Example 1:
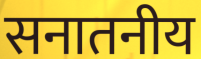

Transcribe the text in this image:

सनातनीय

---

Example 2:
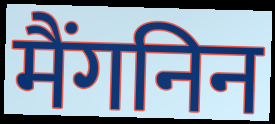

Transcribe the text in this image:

मैंगनिन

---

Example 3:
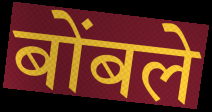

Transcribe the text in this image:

बोंबले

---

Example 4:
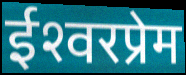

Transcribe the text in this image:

ईश्वरप्रेम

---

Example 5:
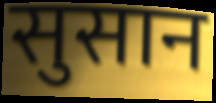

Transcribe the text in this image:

सुसान